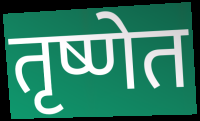
तृष्णेत